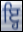
ਇ੍ਹ